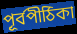
পূর্বপীঠিকা